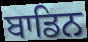
ਬਾਡਿਨ